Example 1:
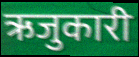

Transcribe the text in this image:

ऋजुकारी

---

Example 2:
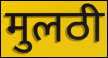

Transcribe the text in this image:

मुलठी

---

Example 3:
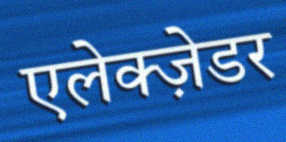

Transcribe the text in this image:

एलेक्ज़ेडर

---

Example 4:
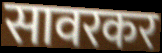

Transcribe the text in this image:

सावरकर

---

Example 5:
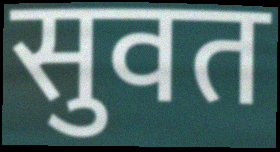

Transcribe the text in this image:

सुवत